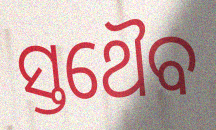
ସ୍ତଥୈବ